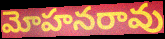
మోహనరావు